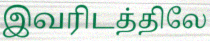
இவரிடத்திலே